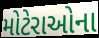
મોટેરાઓના